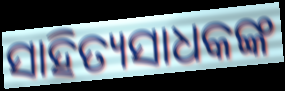
ସାହିତ୍ୟସାଧକଙ୍କ